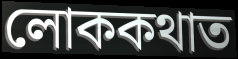
লোককথাত